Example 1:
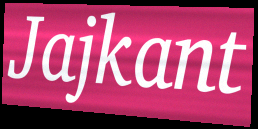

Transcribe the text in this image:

Jajkant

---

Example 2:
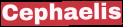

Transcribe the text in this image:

Cephaelis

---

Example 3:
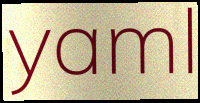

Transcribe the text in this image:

yaml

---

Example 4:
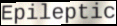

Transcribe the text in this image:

Epileptic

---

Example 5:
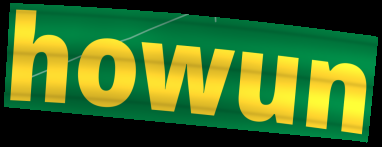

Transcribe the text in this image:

howun